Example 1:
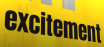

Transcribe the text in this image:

excitement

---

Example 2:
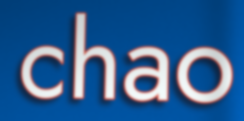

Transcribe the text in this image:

chao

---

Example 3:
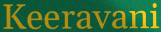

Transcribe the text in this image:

Keeravani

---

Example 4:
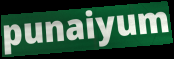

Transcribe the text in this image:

punaiyum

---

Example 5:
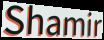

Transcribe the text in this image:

Shamir